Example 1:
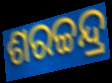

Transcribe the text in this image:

ଶରଚ୍ଚନ୍ଦ୍ର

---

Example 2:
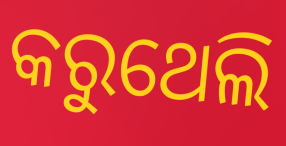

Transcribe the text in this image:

କରୁଥେଲି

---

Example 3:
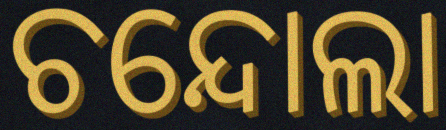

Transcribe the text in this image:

ଚନ୍ଦୋଲା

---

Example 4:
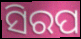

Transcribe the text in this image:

ସିରପ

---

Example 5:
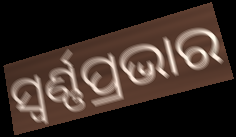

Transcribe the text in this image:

ସ୍ୱର୍ଣ୍ଣପ୍ରଭାର